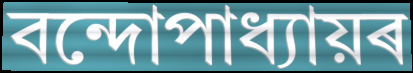
বন্দোপাধ্যায়ৰ